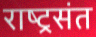
राष्ट्रसंत